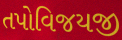
તપોવિજયજી